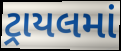
ટ્રાયલમાં